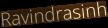
Ravindrasinh